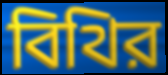
বিথির